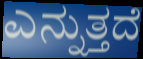
ಎನ್ನುತ್ತದೆ